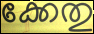
ക്കേതു